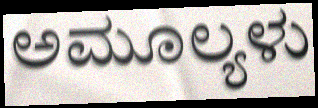
ಅಮೂಲ್ಯಳು